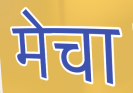
मेचा